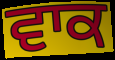
ਵਾਕ